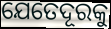
ଯେତେଦୂରକୁ